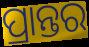
ପ୍ରାନ୍ତର